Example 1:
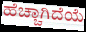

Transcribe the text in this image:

ಹೆಚ್ಚಾಗಿದೆಯೆ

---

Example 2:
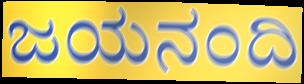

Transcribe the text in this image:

ಜಯನಂದಿ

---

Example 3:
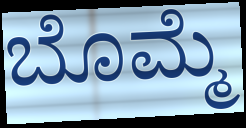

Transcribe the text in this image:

ಬೊಮ್ಮೆ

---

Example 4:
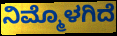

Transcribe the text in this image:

ನಿಮ್ಮೊಳಗಿದೆ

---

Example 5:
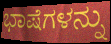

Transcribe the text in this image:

ಭಾಷೆಗಳನ್ನು